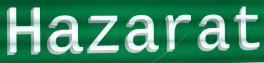
Hazarat